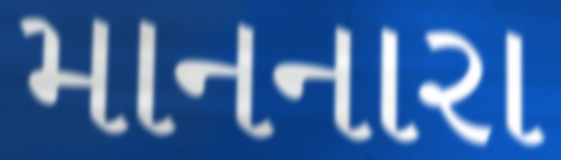
માનનારા